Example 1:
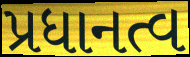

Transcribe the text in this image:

પ્રધાનત્વ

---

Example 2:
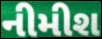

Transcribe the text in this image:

નીમીશ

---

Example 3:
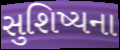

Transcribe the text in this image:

સુશિષ્યના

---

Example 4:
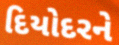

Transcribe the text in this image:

દિયોદરને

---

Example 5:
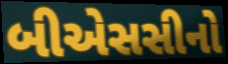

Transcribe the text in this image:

બીએસસીનો